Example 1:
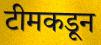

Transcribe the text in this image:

टीमकडून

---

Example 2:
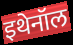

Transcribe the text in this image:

इथेनॉल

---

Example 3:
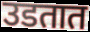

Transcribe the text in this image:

उडतात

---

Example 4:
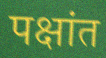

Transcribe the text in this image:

पक्षांत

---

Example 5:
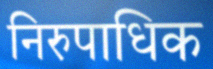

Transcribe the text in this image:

निरुपाधिक